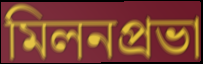
মিলনপ্রভা